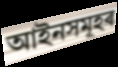
আইনসমূহৰ